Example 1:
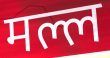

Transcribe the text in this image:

मल्ल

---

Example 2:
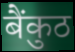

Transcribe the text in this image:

बैंकुठ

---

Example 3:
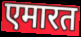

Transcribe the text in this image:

एमारत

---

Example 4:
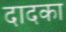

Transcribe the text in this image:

दादका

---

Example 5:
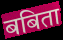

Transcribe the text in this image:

बबिता